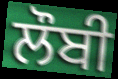
ਲੌਬੀ